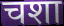
चशा